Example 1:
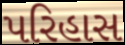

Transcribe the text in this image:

પરિહાસ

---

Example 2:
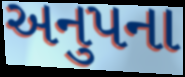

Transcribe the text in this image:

અનુપના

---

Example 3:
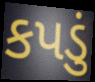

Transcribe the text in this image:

કપડું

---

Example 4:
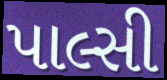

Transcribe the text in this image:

પાલ્સી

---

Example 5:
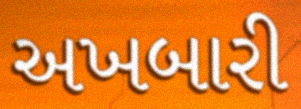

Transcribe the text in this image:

અખબારી